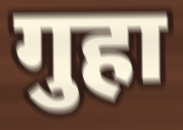
गुहा